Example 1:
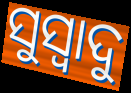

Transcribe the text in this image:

ସୁସ୍ୱାଦୁ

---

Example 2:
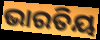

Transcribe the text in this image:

ଭାରତିୟ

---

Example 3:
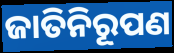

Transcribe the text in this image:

ଜାତିନିରୂପଣ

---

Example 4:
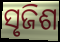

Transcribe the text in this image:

ସୃଜିଶ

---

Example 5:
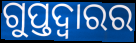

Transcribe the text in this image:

ଗୁପ୍ତଦ୍ୱାରର